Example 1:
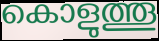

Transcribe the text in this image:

കൊളുത്തൂ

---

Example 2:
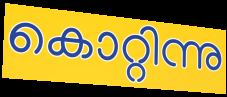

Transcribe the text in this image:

കൊറ്റിന്നു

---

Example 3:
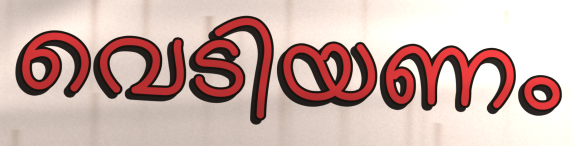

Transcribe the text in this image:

വെടിയണം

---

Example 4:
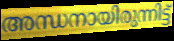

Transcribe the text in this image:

അന്ധനായിരുന്നിട്ട്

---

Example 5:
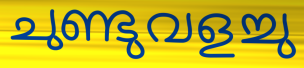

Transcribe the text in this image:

ചുണ്ടുവളച്ചു